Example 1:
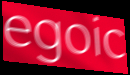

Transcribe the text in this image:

egoic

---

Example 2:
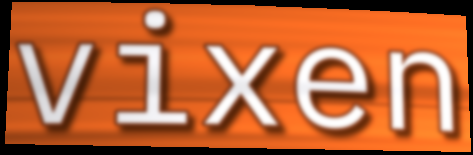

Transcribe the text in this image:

vixen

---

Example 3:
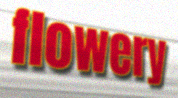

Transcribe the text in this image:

flowery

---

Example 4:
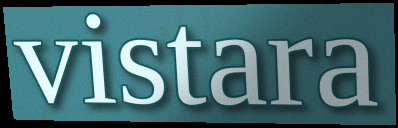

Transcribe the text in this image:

vistara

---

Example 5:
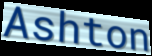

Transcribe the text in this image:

Ashton